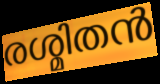
രശ്മിതൻ